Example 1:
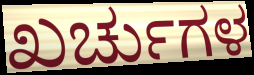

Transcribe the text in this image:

ಖರ್ಚುಗಳ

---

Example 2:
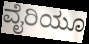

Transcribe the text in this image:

ವೈರಿಯೂ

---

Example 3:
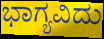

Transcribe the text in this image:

ಭಾಗ್ಯವಿದು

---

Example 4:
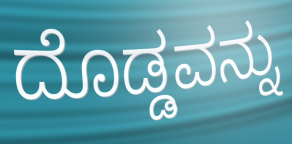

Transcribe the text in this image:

ದೊಡ್ಡವನ್ನು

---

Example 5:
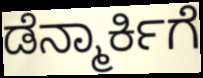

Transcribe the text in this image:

ಡೆನ್ಮಾರ್ಕಿಗೆ